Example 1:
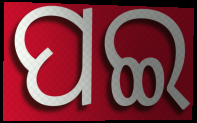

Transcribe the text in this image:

ପଇ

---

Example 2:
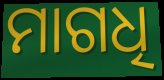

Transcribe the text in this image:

ମାଗଧି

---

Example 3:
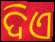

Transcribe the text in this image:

ଦିଏ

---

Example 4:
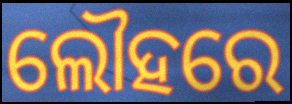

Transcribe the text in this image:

ଲୌହରେ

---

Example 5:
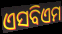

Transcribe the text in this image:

ଏସବିଏମ